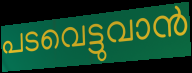
പടവെട്ടുവാൻ